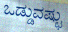
ಒಡ್ಡುವಷ್ಟು